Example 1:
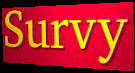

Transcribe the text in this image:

Survy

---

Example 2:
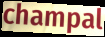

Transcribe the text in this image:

champal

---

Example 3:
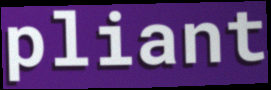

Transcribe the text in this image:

pliant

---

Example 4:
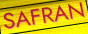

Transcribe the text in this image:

SAFRAN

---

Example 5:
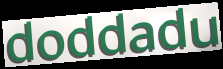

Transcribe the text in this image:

doddadu